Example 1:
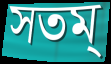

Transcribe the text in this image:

সতম্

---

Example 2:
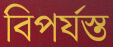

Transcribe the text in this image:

বিপৰ্যস্ত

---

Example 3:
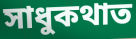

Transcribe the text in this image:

সাধুকথাত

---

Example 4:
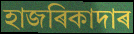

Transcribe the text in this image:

হাজৰিকাদাৰ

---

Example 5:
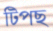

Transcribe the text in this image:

টিপছ